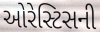
ઓરેસ્ટિસની